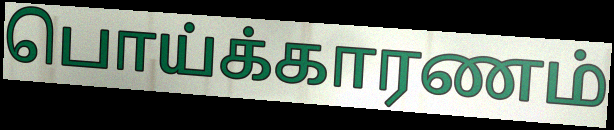
பொய்க்காரணம்